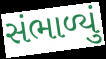
સંભાળ્યું